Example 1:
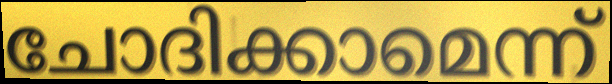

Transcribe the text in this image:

ചോദിക്കാമെന്ന്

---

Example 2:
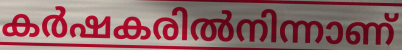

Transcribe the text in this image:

കർഷകരിൽനിന്നാണ്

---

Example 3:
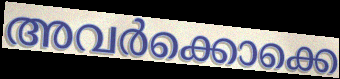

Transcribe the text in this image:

അവർക്കൊക്കെ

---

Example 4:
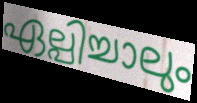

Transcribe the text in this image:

ഏല്പിച്ചാലും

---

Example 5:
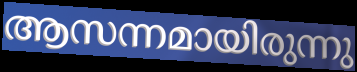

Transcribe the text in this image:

ആസന്നമായിരുന്നു